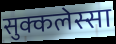
सुक्कलेस्सा